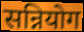
सन्नियोग